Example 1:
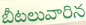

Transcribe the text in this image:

బీటలువారిన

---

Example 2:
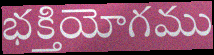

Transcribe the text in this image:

భక్తియోగము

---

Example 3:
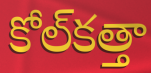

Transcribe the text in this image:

కోల్‌కత్తా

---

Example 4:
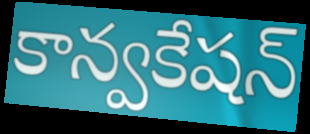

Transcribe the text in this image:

కాన్వకేషన్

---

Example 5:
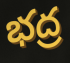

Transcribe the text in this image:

భద్ర